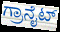
ಗ್ರಾನೈಟ್